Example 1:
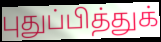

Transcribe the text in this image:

புதுப்பித்துக்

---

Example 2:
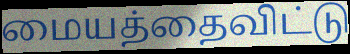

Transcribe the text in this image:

மையத்தைவிட்டு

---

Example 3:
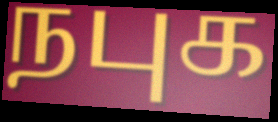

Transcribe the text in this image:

நபுக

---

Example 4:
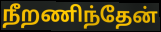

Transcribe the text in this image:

நீறணிந்தேன்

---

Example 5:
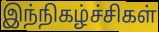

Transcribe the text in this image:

இந்நிகழ்ச்சிகள்